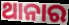
ଥାନାର